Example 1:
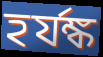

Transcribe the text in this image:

হর্যঙ্ক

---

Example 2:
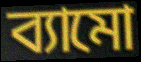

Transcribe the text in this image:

ব্যামো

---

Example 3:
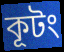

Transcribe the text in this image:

কূটং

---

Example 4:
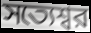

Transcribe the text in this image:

সত্যেশ্বর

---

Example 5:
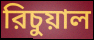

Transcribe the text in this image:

রিচুয়াল